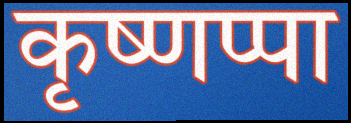
कृष्‍णप्‍पा